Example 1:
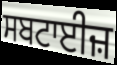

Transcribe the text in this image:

ਸਬਟਾਈਜ਼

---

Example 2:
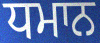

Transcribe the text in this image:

ਧਮਾਨ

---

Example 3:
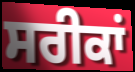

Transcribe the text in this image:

ਸਰੀਕਾਂ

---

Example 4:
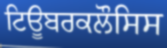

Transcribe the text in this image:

ਟਿਊਬਰਕਲੌਸਿਸ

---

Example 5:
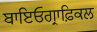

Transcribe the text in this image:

ਬਾਇਓਗ੍ਰਾਫ਼ਿਕਲ